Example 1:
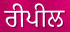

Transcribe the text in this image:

ਰੀਪੀਲ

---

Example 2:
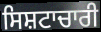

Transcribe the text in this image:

ਸਿਸ਼ਟਾਚਾਰੀ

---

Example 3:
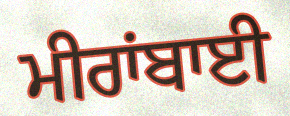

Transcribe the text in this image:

ਮੀਰਾਂਬਾਈ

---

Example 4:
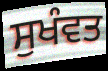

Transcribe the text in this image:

ਸੁਖੰਵਤ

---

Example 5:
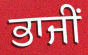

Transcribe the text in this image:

ਭਾਜੀਂ